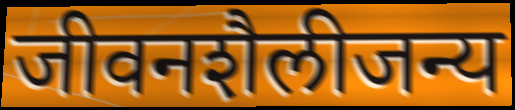
जीवनशैलीजन्य